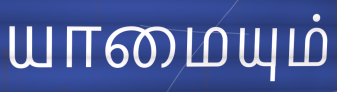
யாமையும்